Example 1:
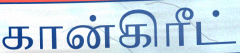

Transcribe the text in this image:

கான்கிரீட்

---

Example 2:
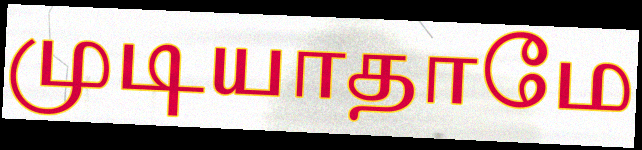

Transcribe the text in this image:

முடியாதாமே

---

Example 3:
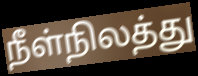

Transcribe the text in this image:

நீள்நிலத்து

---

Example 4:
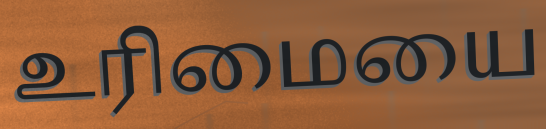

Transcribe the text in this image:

உரிமையை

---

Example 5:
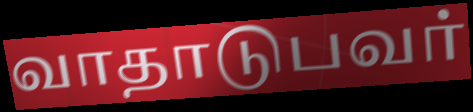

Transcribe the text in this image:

வாதாடுபவர்